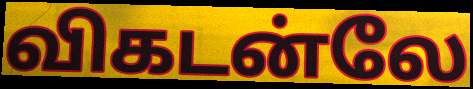
விகடன்லே